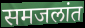
समजलांत